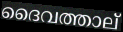
ദൈവത്താല്